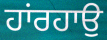
ਹਾਂਰਹਾਉ